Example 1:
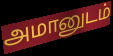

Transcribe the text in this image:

அமானுடம்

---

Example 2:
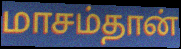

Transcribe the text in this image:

மாசம்தான்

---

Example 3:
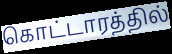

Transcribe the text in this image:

கொட்டாரத்தில்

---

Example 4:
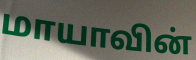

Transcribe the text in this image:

மாயாவின்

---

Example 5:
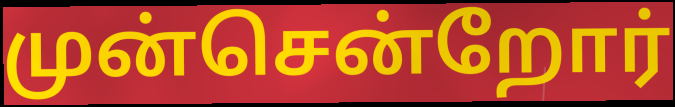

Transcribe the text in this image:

முன்சென்றோர்